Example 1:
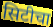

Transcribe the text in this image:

सिटीचा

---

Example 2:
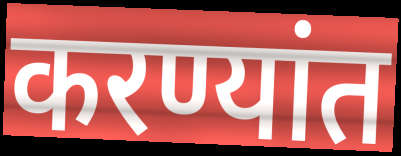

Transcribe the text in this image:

करण्यांत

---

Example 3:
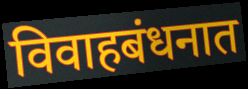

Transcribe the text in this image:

विवाहबंधनात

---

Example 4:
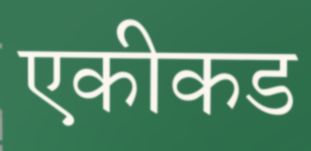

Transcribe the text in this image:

एकीकड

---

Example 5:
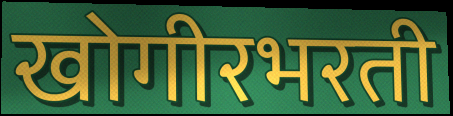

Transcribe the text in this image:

खोगीरभरती